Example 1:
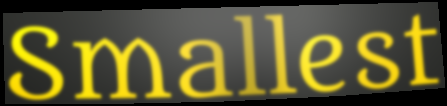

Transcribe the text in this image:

Smallest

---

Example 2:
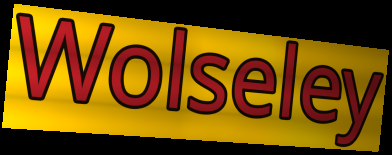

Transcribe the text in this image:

Wolseley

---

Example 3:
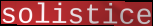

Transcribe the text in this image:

solistice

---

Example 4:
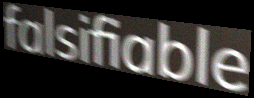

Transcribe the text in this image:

falsifiable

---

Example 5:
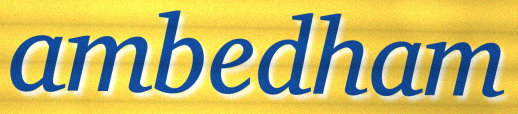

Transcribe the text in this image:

ambedham